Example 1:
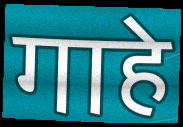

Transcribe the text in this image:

गाहे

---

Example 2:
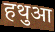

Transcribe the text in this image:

हथुआ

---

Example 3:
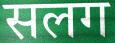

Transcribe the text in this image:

सलग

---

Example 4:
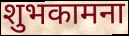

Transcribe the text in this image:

शुभकामना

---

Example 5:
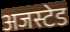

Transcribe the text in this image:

अजस्टेड